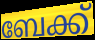
ബേക്ക്